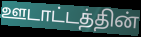
ஊடாட்டத்தின்